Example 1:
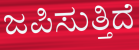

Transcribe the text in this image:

ಜಪಿಸುತ್ತಿದೆ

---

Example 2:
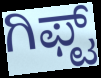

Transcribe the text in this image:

ಗಿಫ್ಟ್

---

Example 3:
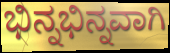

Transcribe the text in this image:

ಭಿನ್ನಭಿನ್ನವಾಗಿ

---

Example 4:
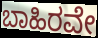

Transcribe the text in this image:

ಬಾಹಿರವೇ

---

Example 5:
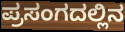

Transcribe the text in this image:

ಪ್ರಸಂಗದಲ್ಲಿನ